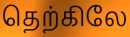
தெற்கிலே